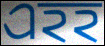
এহহ